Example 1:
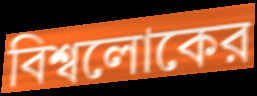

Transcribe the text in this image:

বিশ্বলোকের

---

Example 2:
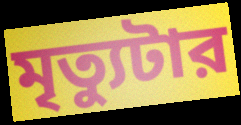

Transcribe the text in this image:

মৃত্যুটার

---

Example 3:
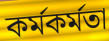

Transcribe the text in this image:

কর্মকর্মতা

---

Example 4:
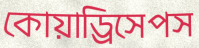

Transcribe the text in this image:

কোয়াড্রিসেপস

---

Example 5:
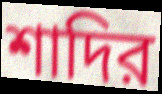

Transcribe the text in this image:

শাদির